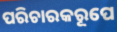
ପରିଚାରକରୂପେ